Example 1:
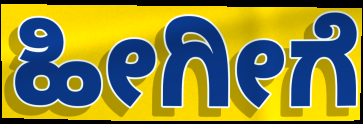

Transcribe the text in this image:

ಹೀಗೀಗೆ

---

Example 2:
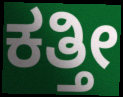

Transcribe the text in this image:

ಕತ್ತೀ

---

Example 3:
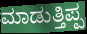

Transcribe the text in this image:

ಮಾಡುತ್ತಿಪ್ಪ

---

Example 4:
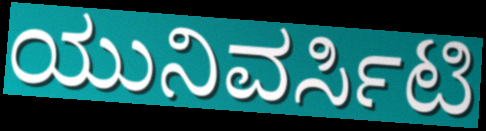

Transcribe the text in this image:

ಯುನಿವರ್ಸಿಟಿ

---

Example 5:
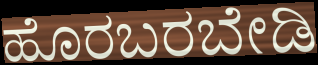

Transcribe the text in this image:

ಹೊರಬರಬೇಡಿ